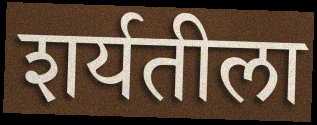
शर्यतीला